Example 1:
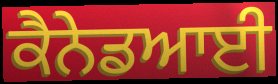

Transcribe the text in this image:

ਕੈਨੇਡਆਈ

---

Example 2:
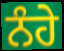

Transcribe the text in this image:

ਨੰਹੇ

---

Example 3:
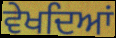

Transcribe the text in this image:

ਵੇਖਦਿਆਂ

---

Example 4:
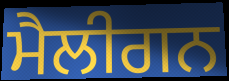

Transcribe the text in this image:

ਮੈਲੀਗਨ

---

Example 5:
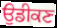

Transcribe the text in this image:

ਉਡੀਕਣ